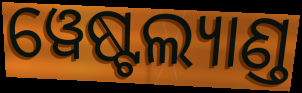
ୱେଷ୍ଟଲ୍ୟାଣ୍ଡ